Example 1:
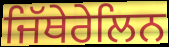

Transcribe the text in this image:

ਜਿੱਥੇਰੇਲਿਨ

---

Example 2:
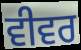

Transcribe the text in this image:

ਵੀਵਰ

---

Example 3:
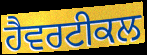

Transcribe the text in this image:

ਹੈਵਰਟੀਕਲ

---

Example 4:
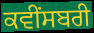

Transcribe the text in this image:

ਕਵੀਂਸਬਰੀ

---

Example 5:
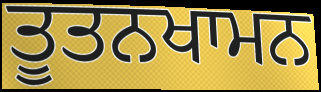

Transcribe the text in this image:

ਤੂਤਨਖਾਮਨ